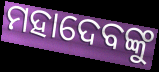
ମହାଦେବଙ୍କୁ